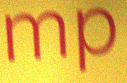
mp